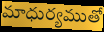
మాధుర్యముతో